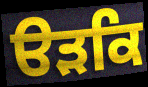
ੳੜਕਿ